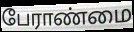
பேராண்மை